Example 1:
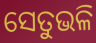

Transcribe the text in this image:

ସେତୁଭଳି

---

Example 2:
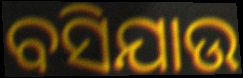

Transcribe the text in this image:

ବସିଯାଉ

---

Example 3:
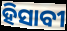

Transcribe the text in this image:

ହିସାବୀ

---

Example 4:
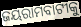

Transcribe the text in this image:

ଜୟରାମବାଟୀକୁ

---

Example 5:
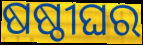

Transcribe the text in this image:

ଷଷ୍ଠୀଘର